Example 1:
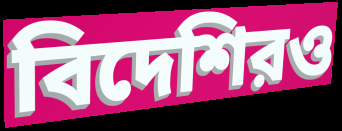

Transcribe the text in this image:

বিদেশিরও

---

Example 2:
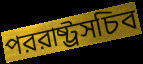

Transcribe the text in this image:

পররাষ্ট্রসচিব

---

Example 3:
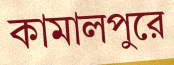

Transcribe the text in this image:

কামালপুরে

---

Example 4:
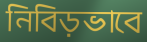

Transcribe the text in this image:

নিবিড়ভাবে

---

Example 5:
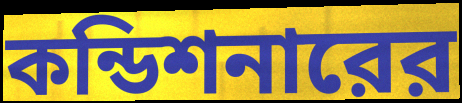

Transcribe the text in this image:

কন্ডিশনারের